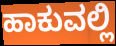
ಹಾಕುವಲ್ಲಿ